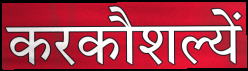
करकौशल्यें